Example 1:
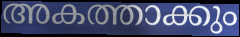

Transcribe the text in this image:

അകത്താക്കും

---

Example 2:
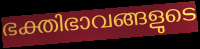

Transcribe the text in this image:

ഭക്തിഭാവങ്ങളുടെ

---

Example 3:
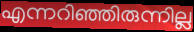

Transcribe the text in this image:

എന്നറിഞ്ഞിരുന്നില്ല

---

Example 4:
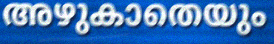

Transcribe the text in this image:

അഴുകാതെയും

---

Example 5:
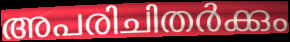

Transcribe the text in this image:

അപരിചിതർക്കും